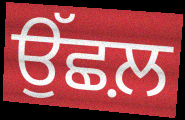
ਉੱਛਲ਼